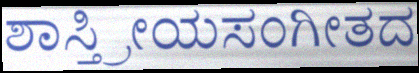
ಶಾಸ್ತ್ರೀಯಸಂಗೀತದ